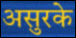
असुरके